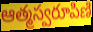
ఆత్మస్వరూపిణి